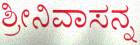
ಶ್ರೀನಿವಾಸನ್ನ